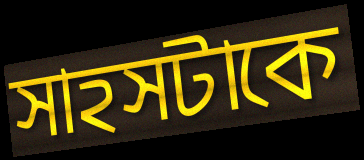
সাহসটাকে